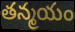
తన్మయం